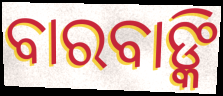
ବାରବାଙ୍କି